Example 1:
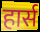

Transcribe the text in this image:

हार्स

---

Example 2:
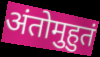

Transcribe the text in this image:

अंतोमुहुतं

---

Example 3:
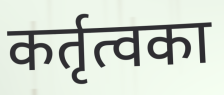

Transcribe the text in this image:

कर्तृत्वका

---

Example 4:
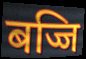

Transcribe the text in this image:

बज्जि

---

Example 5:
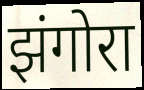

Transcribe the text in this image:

झंगोरा